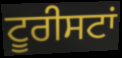
ਟੂਰੀਸਟਾਂ